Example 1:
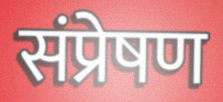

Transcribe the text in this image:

संप्रेषण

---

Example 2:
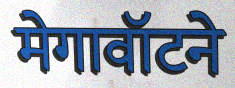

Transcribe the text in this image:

मेगावॉटने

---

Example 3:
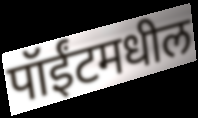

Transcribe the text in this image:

पॉईंटमधील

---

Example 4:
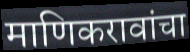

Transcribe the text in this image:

माणिकरावांचा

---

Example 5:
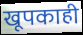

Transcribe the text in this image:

खूपकाही